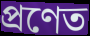
প্ৰণেত